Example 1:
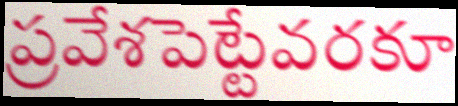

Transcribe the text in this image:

ప్రవేశపెట్టేవరకూ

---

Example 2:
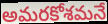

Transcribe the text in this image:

అమరకోశమనే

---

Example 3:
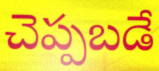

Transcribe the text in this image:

చెప్పబడే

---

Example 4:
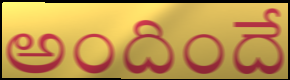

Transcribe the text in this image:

అందిందే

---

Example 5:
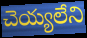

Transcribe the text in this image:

చెయ్యలేని